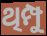
ଥିମ୍ପୁ